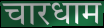
चारधाम